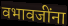
वभावजींना